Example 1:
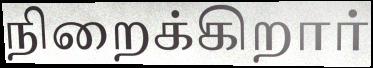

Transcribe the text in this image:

நிறைக்கிறார்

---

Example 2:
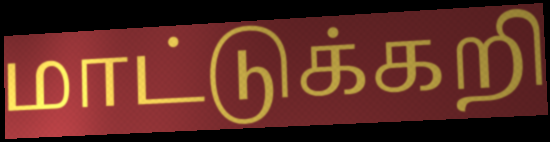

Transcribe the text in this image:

மாட்டுக்கறி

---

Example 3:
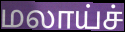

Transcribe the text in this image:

மலாய்ச்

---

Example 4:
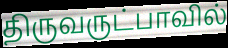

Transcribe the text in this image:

திருவருட்பாவில்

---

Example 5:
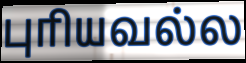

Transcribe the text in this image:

புரியவல்ல